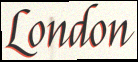
London